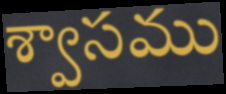
శ్వాసము